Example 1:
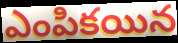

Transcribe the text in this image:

ఎంపికయిన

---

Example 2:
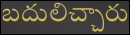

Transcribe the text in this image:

బదులిచ్చారు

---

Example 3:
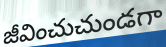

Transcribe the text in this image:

జీవించుచుండగా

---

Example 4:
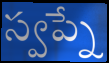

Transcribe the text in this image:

స్వప్నే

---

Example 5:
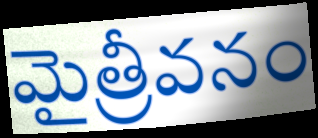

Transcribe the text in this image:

మైత్రీవనం